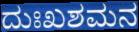
ದುಃಖಶಮನ